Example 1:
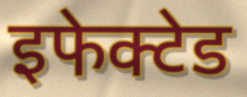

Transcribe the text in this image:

इफेक्टेड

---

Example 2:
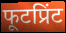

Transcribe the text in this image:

फूटप्रिंट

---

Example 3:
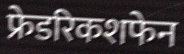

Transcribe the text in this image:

फ्रेडरिकशफेन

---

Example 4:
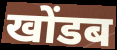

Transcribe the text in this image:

खोंडब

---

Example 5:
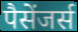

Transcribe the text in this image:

पैसेंजर्स